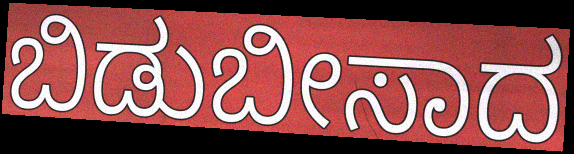
ಬಿಡುಬೀಸಾದ